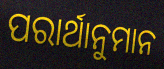
ପରାର୍ଥାନୁମାନ